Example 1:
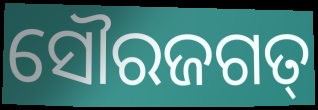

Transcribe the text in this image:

ସୌରଜଗତ୍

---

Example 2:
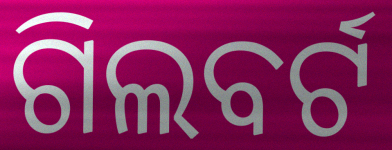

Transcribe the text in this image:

ଗିଲବର୍ଟ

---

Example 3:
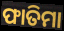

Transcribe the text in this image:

ଫାତିମା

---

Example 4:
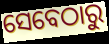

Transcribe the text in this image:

ସେବେଠାରୁ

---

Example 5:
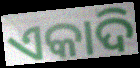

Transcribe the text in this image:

ଏକାଦି